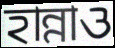
হান্নাও